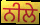
ਨੀਲੇ